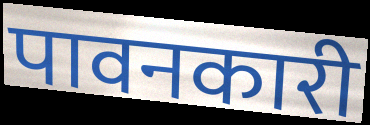
पावनकारी